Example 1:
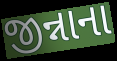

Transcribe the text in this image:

જીન્નાના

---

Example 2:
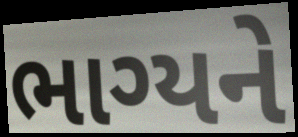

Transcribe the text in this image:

ભાગ્યને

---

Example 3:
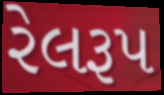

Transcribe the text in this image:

રેલરૂપ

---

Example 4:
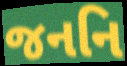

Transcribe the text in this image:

જનનિ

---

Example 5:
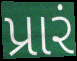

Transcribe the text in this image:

પ્રારં